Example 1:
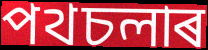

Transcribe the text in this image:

পথচলাৰ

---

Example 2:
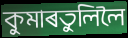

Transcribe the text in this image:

কুমাৰতুলিলৈ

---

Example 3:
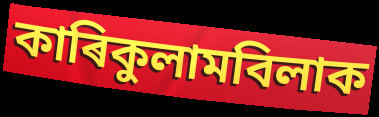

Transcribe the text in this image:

কাৰিকুলামবিলাক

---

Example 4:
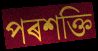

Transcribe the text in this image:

পৰশক্তি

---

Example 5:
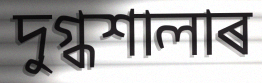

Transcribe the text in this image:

দুগ্ধশালাৰ